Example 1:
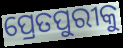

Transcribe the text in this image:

ପ୍ରେତପୁରୀକୁ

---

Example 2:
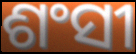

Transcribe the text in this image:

ଶଂସୀ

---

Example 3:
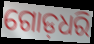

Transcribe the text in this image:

ଗୋଡ଼ଧରି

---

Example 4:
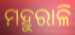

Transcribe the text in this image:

ମହୁରାଳି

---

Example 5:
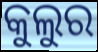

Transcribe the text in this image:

କୁଲୁର